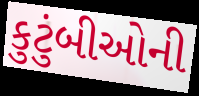
કુટુંબીઓની